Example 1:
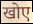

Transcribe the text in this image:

खोए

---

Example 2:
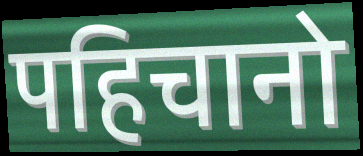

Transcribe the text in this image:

पहिचानो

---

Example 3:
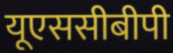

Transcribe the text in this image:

यूएससीबीपी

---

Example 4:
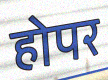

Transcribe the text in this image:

होपर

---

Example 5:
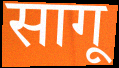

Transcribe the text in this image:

सागू